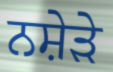
ਨਸ਼ੇੜੇ